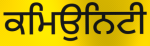
ਕਮਿਉਨਿਟੀ